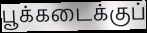
பூக்கடைக்குப்